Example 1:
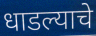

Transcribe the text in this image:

धाडल्याचे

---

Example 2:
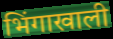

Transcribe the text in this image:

भिंगाखाली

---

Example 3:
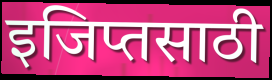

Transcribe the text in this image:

इजिप्तसाठी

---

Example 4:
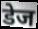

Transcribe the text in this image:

डेज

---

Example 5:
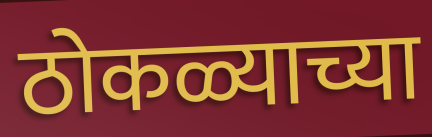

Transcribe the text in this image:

ठोकळ्याच्या